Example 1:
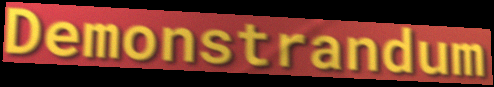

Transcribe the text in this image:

Demonstrandum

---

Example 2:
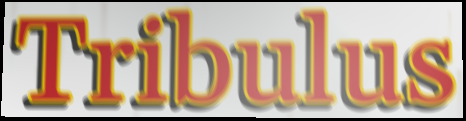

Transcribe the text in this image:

Tribulus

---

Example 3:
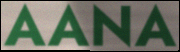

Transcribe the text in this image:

AANA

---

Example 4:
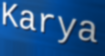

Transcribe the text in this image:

Karya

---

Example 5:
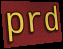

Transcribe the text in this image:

prd